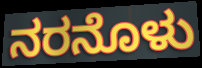
ನರನೊಳು